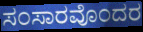
ಸಂಸಾರವೊಂದರ